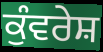
ਕੁੰਵਰੇਸ਼